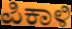
ಪಿಕಾಳಿ